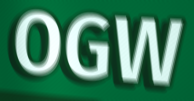
OGW